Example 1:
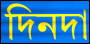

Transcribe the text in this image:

দিনদা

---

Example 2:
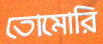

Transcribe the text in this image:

তোমোরি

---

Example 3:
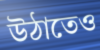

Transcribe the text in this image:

উঠাতেও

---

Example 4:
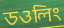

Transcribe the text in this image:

ডওলিং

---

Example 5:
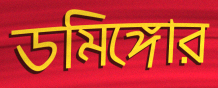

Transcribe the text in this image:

ডমিঙ্গোর